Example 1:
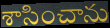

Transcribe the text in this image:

శాసించాను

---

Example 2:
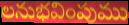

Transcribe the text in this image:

లనుభవింపుము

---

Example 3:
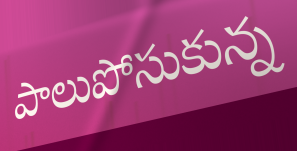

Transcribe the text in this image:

పాలుపోసుకున్న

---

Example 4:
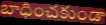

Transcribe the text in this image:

బాధించకుండా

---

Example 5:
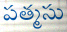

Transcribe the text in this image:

పత్మసు